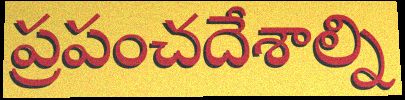
ప్రపంచదేశాల్ని